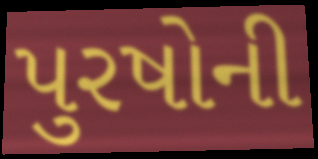
પુરષોની